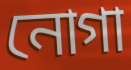
নোগা